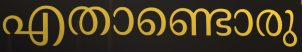
എതാണ്ടൊരു